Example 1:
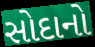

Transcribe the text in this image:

સોદાનો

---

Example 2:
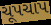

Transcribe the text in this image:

ચૂપચાપ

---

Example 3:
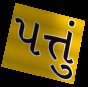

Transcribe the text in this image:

પત્તું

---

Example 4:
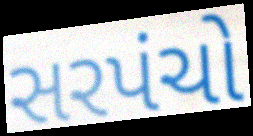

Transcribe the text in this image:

સરપંચો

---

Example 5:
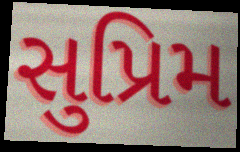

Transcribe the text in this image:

સુપ્રિમ